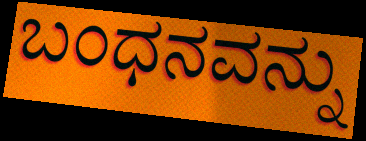
ಬಂಧನವನ್ನು